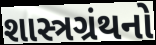
શાસ્ત્રગ્રંથનો